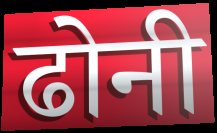
ढोनी